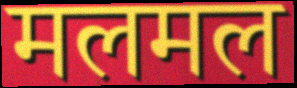
मलमल